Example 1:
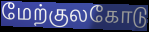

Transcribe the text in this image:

மேற்குலகோடு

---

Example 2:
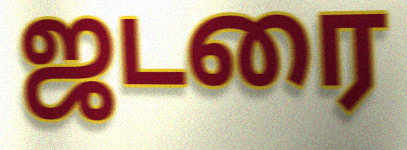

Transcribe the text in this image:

ஜடரை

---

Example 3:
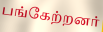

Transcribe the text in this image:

பங்கேற்றனர்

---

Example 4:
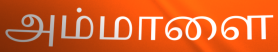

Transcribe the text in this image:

அம்மாளை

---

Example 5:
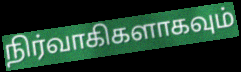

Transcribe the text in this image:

நிர்வாகிகளாகவும்